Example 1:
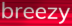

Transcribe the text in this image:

breezy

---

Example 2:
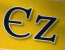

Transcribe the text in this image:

Ez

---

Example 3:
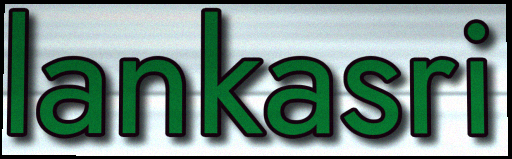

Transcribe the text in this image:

lankasri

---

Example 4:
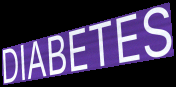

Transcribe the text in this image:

DIABETES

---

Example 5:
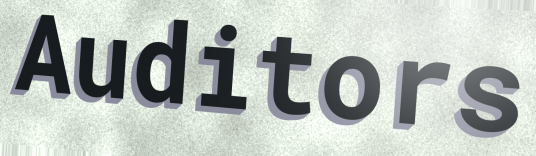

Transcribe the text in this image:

Auditors